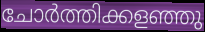
ചോർത്തിക്കളഞ്ഞു